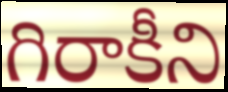
గిరాకీని